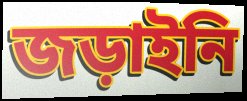
জড়াইনি